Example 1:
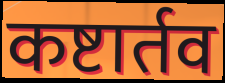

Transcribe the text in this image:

कष्टार्तव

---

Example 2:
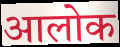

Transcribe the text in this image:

आलोक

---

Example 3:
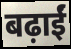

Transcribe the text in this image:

बढ़ाईं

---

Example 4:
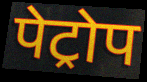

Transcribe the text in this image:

पेट्रोप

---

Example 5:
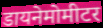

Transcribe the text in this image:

डायनेमोमीटर